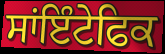
ਸਾਂਇੰਟੇਫਿਕ